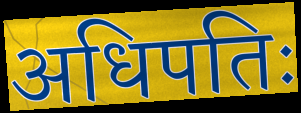
अधिपतिः